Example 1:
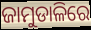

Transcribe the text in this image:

ଜାମୁଡାଳିରେ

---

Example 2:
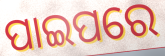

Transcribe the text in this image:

ପାଇପରେ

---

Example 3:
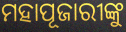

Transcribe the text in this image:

ମହାପୂଜାରୀଙ୍କୁ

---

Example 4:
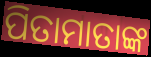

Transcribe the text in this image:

ପିତାମାତାଙ୍କ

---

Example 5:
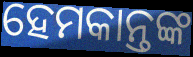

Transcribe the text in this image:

ହେମକାନ୍ତଙ୍କ